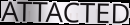
ATTACTED